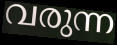
വരുന്ന